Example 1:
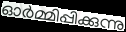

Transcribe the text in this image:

ഓർമ്മിപ്പിക്കുന്നു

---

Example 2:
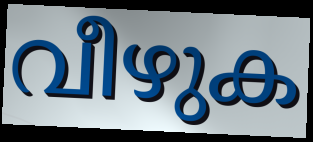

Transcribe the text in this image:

വീഴുക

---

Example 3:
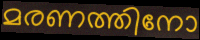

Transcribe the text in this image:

മരണത്തിനോ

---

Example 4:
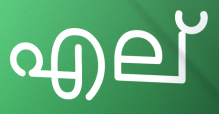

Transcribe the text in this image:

എല്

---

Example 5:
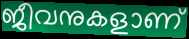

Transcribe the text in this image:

ജീവനുകളാണ്